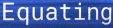
Equating